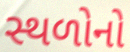
સ્થળોનો